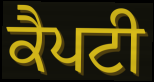
ਕੈਪਟੀ